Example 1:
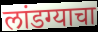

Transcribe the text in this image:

लांडग्याचा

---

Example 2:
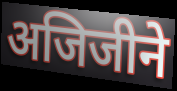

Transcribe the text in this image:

अजिजीने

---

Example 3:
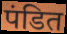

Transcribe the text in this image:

पंडित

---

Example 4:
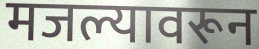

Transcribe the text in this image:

मजल्यावरून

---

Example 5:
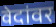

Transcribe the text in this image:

वेदांवर